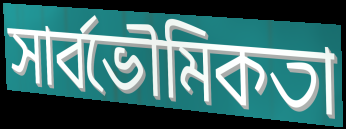
সার্বভৌমিকতা